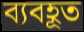
ব্যবহূত